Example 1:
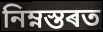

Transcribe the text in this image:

নিম্নস্তৰত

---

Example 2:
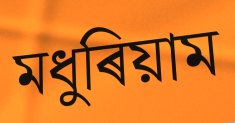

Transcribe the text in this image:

মধুৰিয়াম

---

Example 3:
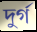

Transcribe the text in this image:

দুৰ্গ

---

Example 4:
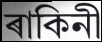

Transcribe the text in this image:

ৰাকিনী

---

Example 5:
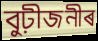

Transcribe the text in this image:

বুঢ়ীজনীৰ